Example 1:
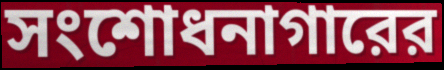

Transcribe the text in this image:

সংশোধনাগারের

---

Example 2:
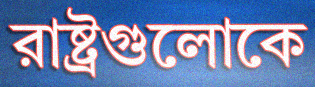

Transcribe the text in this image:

রাষ্ট্রগুলোকে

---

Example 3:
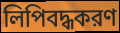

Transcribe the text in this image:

লিপিবদ্ধকরণ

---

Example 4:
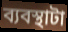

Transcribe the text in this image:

ব্যবস্থাটা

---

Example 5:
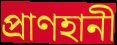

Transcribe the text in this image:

প্রাণহানী